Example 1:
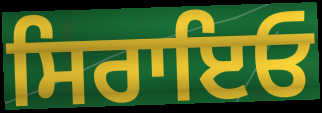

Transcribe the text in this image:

ਸਿਰਾਇਓ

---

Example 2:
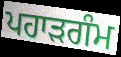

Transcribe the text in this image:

ਪਹਾੜਗੰਮ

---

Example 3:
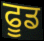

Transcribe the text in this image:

ਫੂਡ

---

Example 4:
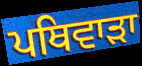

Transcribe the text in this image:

ਪਥਿਵਾੜਾ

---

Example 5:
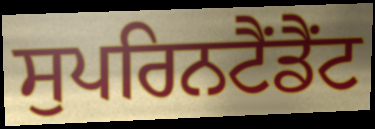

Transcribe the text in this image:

ਸੁਪਰਿਨਟੈਂਡੈਂਟ